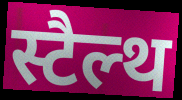
स्टैल्थ